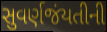
સુવર્ણજંયતીની